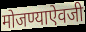
मोजण्याऐवजी